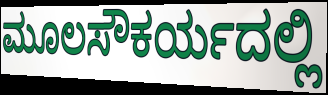
ಮೂಲಸೌಕರ್ಯದಲ್ಲಿ